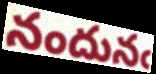
నందునఁ